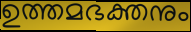
ഉത്തമഭക്തനും